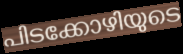
പിടക്കോഴിയുടെ